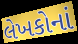
લેખકોનાં